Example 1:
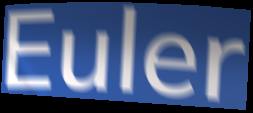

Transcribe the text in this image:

Euler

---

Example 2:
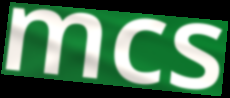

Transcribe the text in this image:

mcs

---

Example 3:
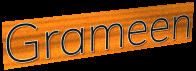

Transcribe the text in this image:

Grameen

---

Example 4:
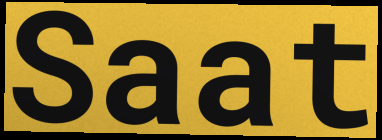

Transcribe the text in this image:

Saat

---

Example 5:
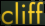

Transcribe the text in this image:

cliff